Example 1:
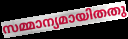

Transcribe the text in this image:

സമ്മാന്യമായിതതു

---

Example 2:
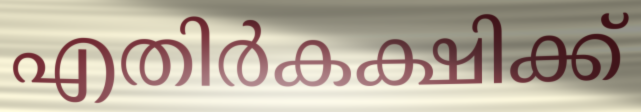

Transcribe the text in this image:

എതിർകക്ഷിക്ക്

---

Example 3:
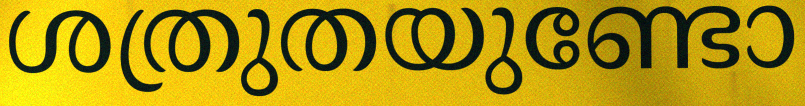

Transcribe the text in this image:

ശത്രുതയുണ്ടോ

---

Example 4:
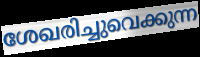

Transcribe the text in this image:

ശേഖരിച്ചുവെക്കുന്ന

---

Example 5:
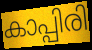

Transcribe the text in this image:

കാപ്പിരി